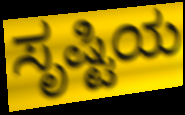
ಸೃಷ್ಟಿಯ